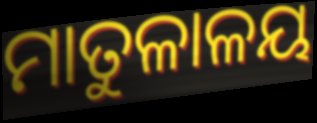
ମାତୁଳାଳୟ